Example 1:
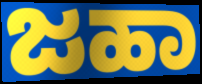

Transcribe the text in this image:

ಜಹಾ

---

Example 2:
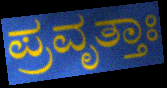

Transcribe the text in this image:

ಪ್ರವೃತ್ತಾಃ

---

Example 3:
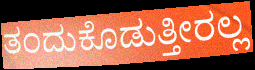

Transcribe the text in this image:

ತಂದುಕೊಡುತ್ತೀರಲ್ಲ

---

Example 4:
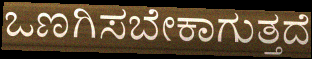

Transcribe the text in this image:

ಒಣಗಿಸಬೇಕಾಗುತ್ತದೆ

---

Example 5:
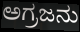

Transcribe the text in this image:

ಅಗ್ರಜನು